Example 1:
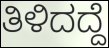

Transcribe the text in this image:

ತಿಳಿದದ್ದೆ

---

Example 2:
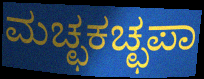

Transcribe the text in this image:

ಮಚ್ಛಕಚ್ಛಪಾ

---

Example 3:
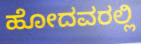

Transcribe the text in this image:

ಹೋದವರಲ್ಲಿ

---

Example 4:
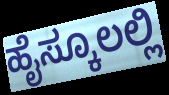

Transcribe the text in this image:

ಹೈಸ್ಕೂಲಲ್ಲಿ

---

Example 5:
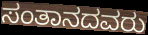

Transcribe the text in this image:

ಸಂತಾನದವರು